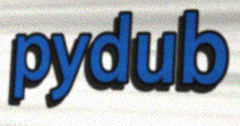
pydub